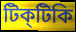
টিক্‌টিকি